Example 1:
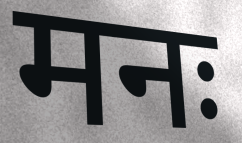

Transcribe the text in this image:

मनः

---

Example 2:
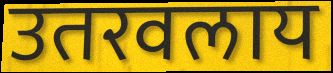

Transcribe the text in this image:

उतरवलाय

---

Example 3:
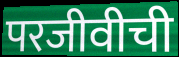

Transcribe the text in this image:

परजीवीची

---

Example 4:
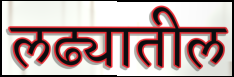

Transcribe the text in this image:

लढ्यातील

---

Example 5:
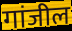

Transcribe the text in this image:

गांजील